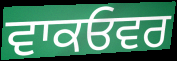
ਵਾਕਓਵਰ